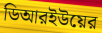
ডিআরইউয়ের